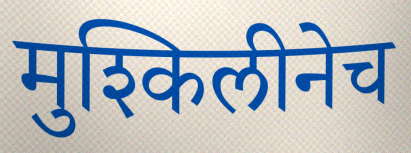
मुश्किलीनेच